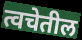
त्वचेतील